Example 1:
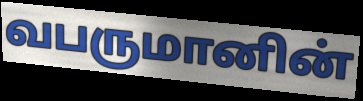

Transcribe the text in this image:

வபருமானின்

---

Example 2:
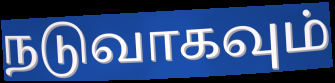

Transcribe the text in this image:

நடுவாகவும்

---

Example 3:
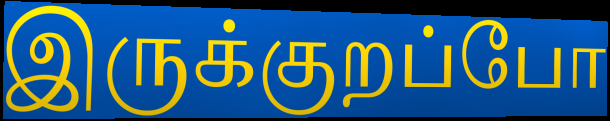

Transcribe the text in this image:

இருக்குறப்போ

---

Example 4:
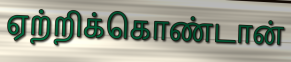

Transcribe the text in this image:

ஏற்றிக்கொண்டான்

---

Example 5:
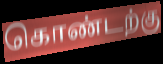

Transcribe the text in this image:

கொண்டற்கு